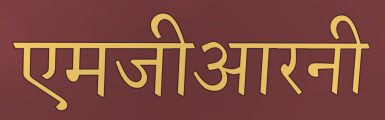
एमजीआरनी